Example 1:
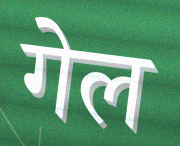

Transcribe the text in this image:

गेल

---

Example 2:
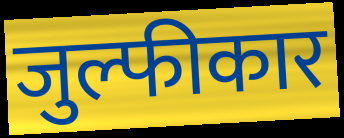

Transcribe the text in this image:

जुल्फीकार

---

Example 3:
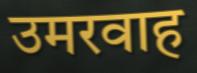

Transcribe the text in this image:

उमरवाह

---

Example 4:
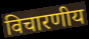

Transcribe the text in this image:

विचारणीय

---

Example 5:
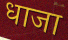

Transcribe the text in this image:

धाजा